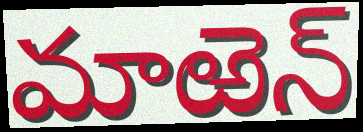
మాఱెన్